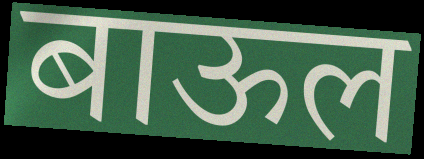
बाऊल